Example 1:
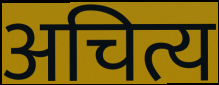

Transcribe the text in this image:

अचित्य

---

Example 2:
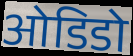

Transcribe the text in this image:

ओडिडो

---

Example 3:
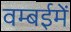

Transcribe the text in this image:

वम्बईमें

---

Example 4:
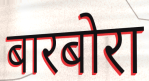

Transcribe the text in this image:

बारबोरा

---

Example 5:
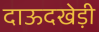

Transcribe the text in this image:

दाऊदखेड़ी